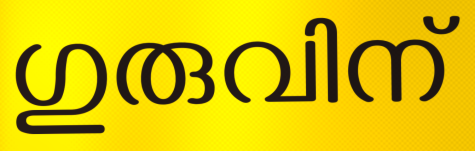
ഗുരുവിന്